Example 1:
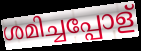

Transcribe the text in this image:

ശമിച്ചപ്പോള്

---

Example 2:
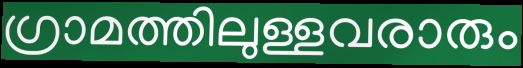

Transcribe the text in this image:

ഗ്രാമത്തിലുള്ളവരാരും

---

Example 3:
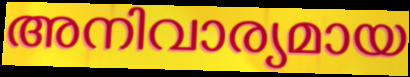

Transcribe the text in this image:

അനിവാര്യമായ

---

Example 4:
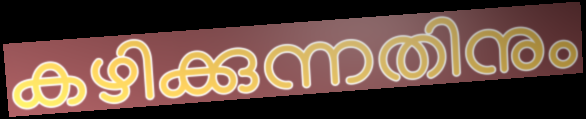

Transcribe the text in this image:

കഴിക്കുന്നതിനും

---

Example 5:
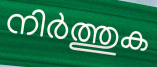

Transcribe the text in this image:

നിർത്തുക